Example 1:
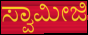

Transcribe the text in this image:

ಸ್ವಾಮೀಜಿ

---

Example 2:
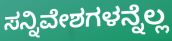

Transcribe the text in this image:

ಸನ್ನಿವೇಶಗಳನ್ನೆಲ್ಲ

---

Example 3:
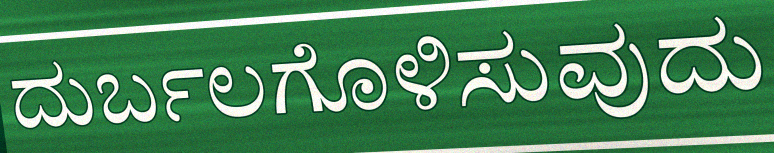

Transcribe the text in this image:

ದುರ್ಬಲಗೊಳಿಸುವುದು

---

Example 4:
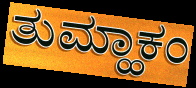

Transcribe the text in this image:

ತುಮ್ಹಾಕಂ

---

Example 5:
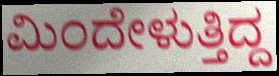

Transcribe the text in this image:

ಮಿಂದೇಳುತ್ತಿದ್ದ